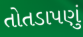
તોતડાપણું